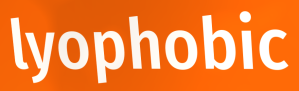
lyophobic